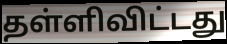
தள்ளிவிட்டது